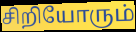
சிறியோரும்